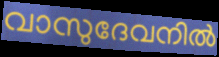
വാസുദേവനിൽ